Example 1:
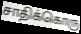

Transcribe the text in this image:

சாதிக்கொரு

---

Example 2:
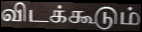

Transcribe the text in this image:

விடக்கூடும்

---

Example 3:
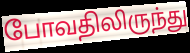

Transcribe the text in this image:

போவதிலிருந்து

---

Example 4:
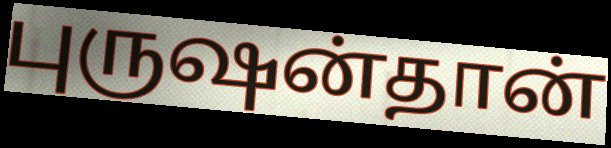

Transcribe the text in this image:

புருஷன்தான்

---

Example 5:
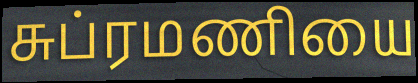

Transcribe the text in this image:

சுப்ரமணியை